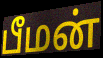
பீமன்